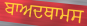
ਬਾਅਦਥਾਮਸ